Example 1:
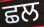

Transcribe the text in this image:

ਛਲ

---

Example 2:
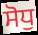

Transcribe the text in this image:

ਸੋਧੁ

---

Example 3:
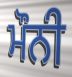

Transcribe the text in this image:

ਮੌਨੀ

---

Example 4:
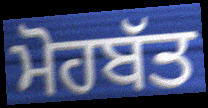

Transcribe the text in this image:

ਮੋਹਬੱਤ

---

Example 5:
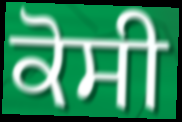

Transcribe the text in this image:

ਕੋਸੀ